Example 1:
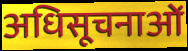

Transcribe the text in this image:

अधिसूचनाओं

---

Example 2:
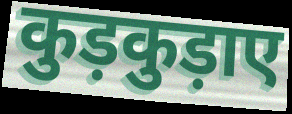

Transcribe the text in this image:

कुड़कुड़ाए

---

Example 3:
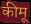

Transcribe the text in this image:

कीमू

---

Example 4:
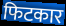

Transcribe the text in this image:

फिटकार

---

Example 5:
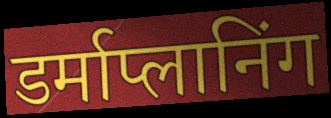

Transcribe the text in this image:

डर्माप्लानिंग